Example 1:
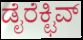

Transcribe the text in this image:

ಡೈರೆಕ್ಟಿವ್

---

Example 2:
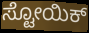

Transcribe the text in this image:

ಸ್ಟೋಯಿಕ್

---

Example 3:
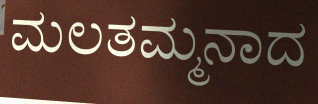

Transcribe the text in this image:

ಮಲತಮ್ಮನಾದ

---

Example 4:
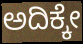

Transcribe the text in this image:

ಅದಿಕ್ಕೇ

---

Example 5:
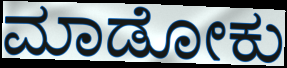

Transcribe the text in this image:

ಮಾಡೋಕು